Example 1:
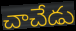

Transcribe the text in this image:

చాచేడు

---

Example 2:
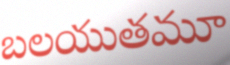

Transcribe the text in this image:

బలయుతమూ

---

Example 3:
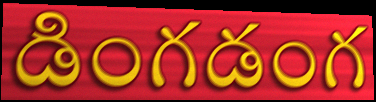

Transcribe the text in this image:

డింగడంగ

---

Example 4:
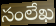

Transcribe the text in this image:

సంలేఖ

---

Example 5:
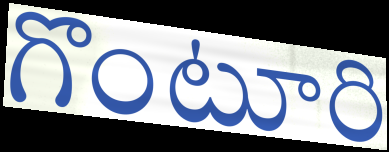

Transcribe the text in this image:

గొంటూరి